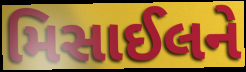
મિસાઈલને